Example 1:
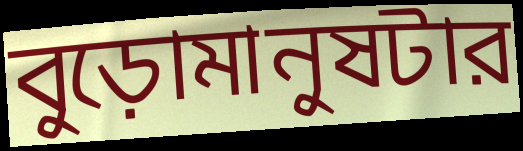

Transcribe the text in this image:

বুড়োমানুষটার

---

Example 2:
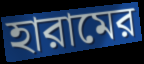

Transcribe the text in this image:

হারামের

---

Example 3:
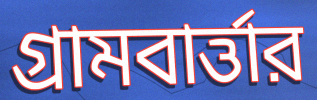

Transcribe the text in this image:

গ্রামবার্ত্তার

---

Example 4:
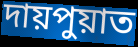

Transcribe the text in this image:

দায়পুয়াত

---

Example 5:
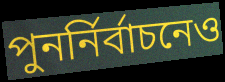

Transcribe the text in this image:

পুনর্নির্বাচনেও